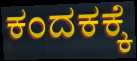
ಕಂದಕಕ್ಕೆ